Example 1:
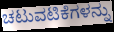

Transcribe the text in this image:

ಚಟುವಟಿಕೆಗಳನ್ನು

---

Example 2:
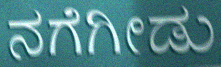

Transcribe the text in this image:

ನಗೆಗೀಡು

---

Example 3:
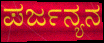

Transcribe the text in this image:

ಪರ್ಜನ್ಯನ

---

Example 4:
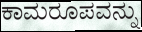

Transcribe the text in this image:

ಕಾಮರೂಪವನ್ನು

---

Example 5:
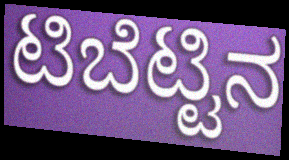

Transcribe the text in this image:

ಟಿಬೆಟ್ಟಿನ